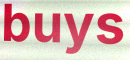
buys